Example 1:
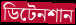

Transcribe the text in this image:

ডিটেনশান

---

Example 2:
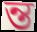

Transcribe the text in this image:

ন্ত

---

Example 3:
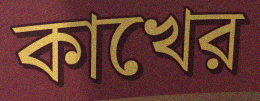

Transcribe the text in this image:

কাখের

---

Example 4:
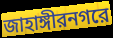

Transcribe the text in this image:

জাহাঙ্গীরনগরে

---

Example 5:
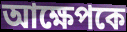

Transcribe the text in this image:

আক্ষেপকে